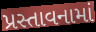
પ્રસ્તાવનામાં